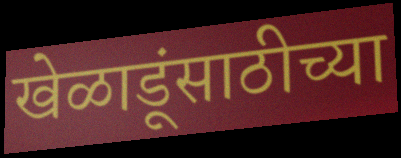
खेळाडूंसाठीच्या